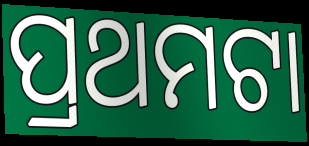
ପ୍ରଥମଟା